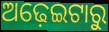
ଅଢ଼େଇଟାରୁ